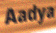
Aadya